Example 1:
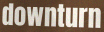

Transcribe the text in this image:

downturn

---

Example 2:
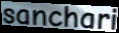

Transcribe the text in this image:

sanchari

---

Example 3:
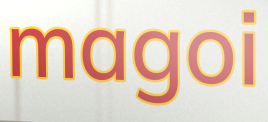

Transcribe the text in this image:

magoi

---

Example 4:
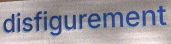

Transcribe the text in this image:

disfigurement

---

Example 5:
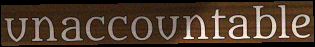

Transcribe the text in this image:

unaccountable